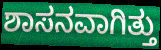
ಶಾಸನವಾಗಿತ್ತು